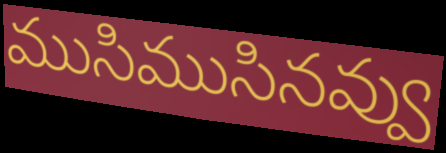
ముసిముసినవ్వు